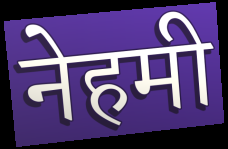
नेहमी